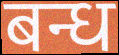
बन्ध